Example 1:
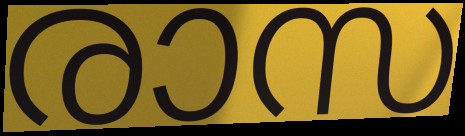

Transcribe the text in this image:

രാസ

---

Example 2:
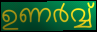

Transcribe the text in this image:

ഉണർവ്വ്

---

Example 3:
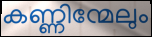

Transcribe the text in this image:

കണ്ണിന്മേലും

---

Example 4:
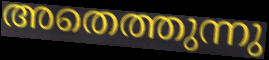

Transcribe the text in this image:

അതെത്തുന്നു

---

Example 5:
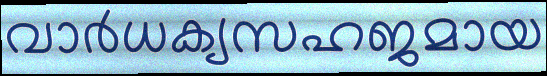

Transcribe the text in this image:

വാർധക്യസഹജമായ